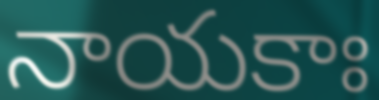
నాయకాః